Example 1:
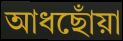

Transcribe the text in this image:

আধছোঁয়া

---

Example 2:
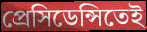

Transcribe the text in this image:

প্রেসিডেন্সিতেই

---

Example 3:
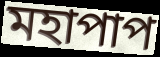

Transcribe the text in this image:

মহাপাপ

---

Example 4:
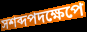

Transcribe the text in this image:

সশব্দপদক্ষেপে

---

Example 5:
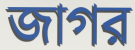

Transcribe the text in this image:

জাগর